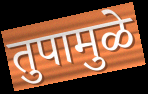
तुपामुळे